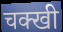
चक्खी